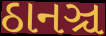
ઠાનઞ્ચ